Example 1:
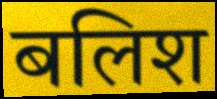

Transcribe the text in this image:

बलिश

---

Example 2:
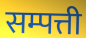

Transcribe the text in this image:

सम्पत्ती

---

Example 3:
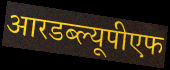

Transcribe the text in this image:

आरडब्ल्यूपीएफ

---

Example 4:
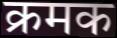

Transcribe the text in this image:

क्रमक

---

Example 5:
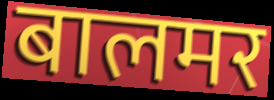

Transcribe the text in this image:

बालमर